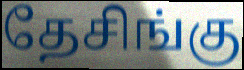
தேசிங்கு